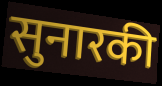
सुनारकी